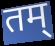
तम्